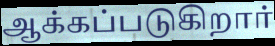
ஆக்கப்படுகிறார்